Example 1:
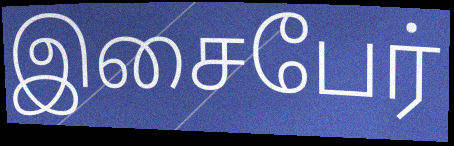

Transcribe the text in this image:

இசைபேர்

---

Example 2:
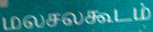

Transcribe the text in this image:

மலசலகூடம்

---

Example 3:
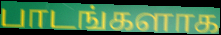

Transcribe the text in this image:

பாடங்களாக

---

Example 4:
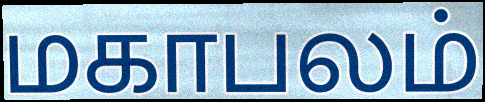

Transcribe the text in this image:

மகாபலம்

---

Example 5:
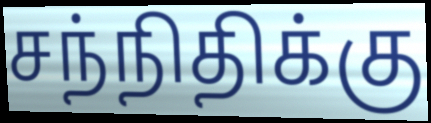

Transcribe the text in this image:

சந்நிதிக்கு